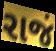
રાજં